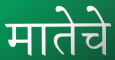
मातेचे